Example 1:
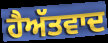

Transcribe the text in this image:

ਹੈਅੱਤਵਾਦ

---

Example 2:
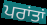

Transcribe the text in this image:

ਪਰਾਂਤਾਂ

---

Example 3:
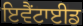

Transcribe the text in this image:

ਇਵੈਂਟਾਈਡ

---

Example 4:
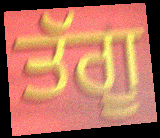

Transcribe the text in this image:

ਤੱਗੂ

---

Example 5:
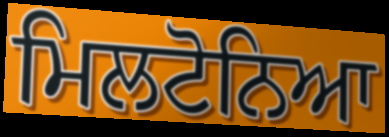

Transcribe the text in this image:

ਮਿਲਟੋਨਿਆ